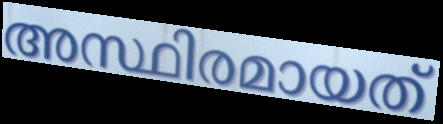
അസ്ഥിരമായത്